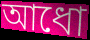
আধো